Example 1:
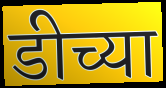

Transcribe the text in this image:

डीच्या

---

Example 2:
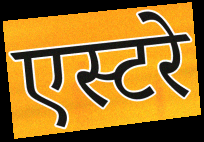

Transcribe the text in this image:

एस्टरे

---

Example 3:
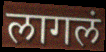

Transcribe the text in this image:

लागलं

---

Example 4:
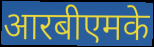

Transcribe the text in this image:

आरबीएमके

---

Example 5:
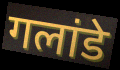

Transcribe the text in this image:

गलांडे